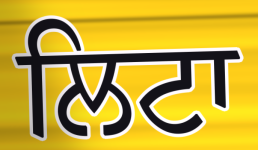
ਲਿਟਾ